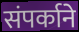
संपर्काने